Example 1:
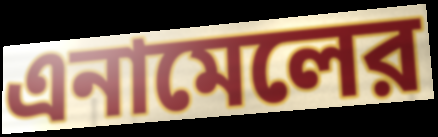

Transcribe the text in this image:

এনামেলের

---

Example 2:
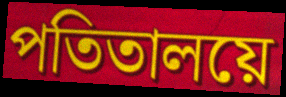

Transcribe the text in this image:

পতিতালয়ে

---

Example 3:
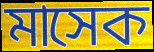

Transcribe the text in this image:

মাসেক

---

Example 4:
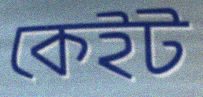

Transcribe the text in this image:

কেইট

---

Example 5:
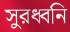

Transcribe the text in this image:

সুরধ্বনি